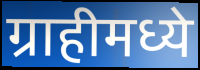
ग्राहीमध्ये